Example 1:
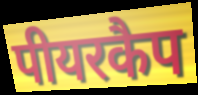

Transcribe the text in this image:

पीयरकैप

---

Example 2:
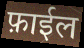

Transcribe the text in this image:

फ़ाईल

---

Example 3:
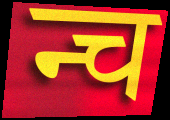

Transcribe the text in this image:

न्च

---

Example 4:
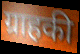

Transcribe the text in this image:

ग्राहकी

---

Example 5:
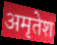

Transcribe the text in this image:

अमृतेश